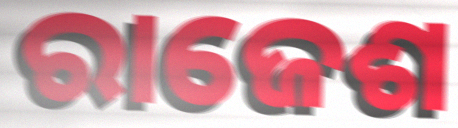
ରାଜେଶ